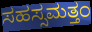
ಸಹಸ್ಸಮತ್ತಂ